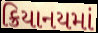
ક્રિયાનયમાં